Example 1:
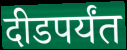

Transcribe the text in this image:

दीडपर्यंत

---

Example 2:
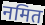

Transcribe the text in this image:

नमित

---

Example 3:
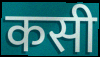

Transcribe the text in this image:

कसी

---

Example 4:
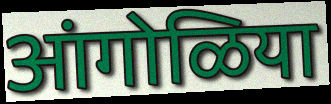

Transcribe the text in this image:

आंगोळिया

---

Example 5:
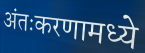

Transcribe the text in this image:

अंतःकरणामध्ये